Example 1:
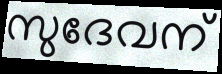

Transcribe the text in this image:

സുദേവന്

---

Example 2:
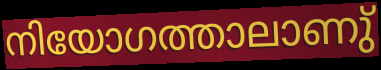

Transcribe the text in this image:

നിയോഗത്താലാണു്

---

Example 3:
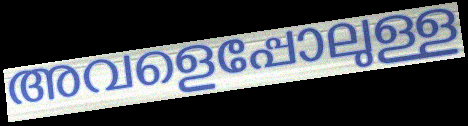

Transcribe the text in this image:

അവളെപ്പോലുള്ള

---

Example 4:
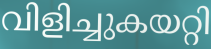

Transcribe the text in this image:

വിളിച്ചുകയറ്റി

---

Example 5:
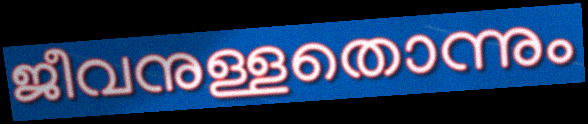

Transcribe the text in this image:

ജീവനുള്ളതൊന്നും